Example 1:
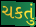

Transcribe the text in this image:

ચકતું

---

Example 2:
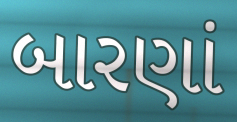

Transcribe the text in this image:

બારણાં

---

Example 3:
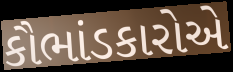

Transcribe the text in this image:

કૌભાંડકારોએ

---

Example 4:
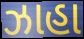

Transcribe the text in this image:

ઝાહા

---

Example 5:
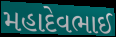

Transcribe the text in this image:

મહાદેવભાઈ